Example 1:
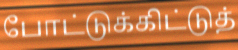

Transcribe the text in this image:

போட்டுக்கிட்டுத்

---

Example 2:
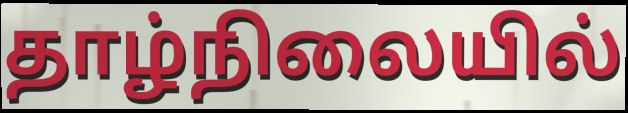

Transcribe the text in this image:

தாழ்நிலையில்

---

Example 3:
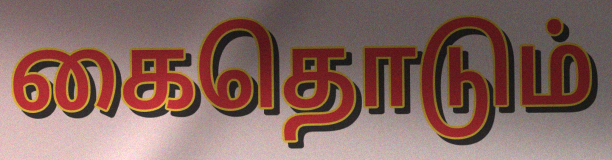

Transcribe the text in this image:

கைதொடும்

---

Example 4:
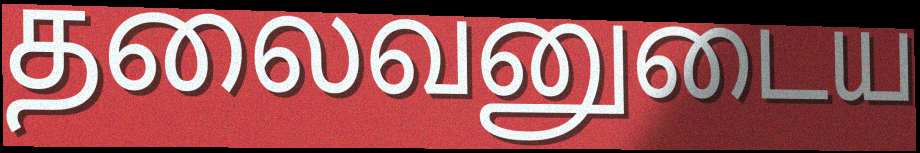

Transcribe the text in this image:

தலைவனுடைய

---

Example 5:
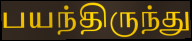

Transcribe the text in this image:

பயந்திருந்து